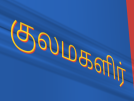
குலமகளிர்